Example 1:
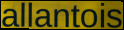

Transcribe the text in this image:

allantois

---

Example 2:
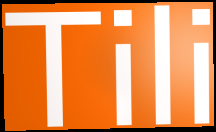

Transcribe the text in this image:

Tili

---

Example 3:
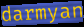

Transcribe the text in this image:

darmyan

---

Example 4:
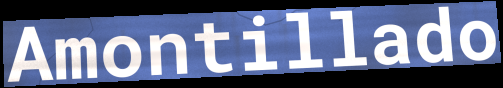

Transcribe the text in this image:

Amontillado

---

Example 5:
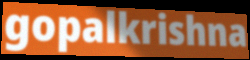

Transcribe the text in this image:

gopalkrishna